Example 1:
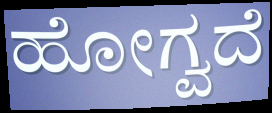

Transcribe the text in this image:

ಹೋಗ್ವದೆ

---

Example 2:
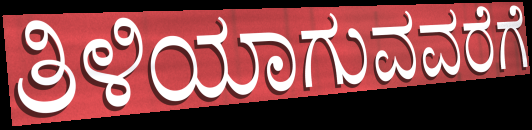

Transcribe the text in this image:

ತಿಳಿಯಾಗುವವರೆಗೆ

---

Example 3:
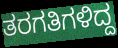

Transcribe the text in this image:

ತರಗತಿಗಳಿದ್ದ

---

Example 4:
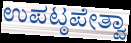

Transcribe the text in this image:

ಉಪಟ್ಠಪೇತ್ವಾ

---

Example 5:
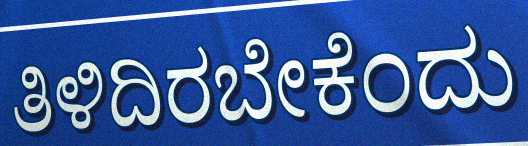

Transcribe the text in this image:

ತಿಳಿದಿರಬೇಕೆಂದು